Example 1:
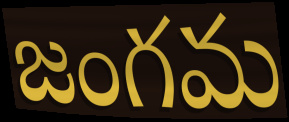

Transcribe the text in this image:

జంగమ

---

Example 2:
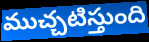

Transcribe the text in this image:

ముచ్చటిస్తుంది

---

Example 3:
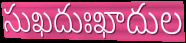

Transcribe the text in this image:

సుఖదుఃఖాదుల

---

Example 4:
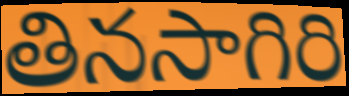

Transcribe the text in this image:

తినసాగిరి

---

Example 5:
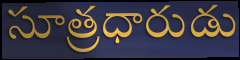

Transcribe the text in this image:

సూత్రధారుడు